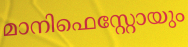
മാനിഫെസ്റ്റോയും